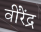
वींरेंद्र